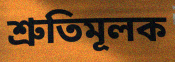
শ্রুতিমূলক